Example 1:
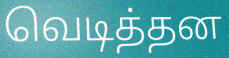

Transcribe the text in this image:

வெடித்தன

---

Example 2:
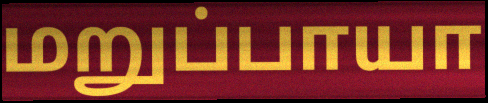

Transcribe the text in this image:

மறுப்பாயா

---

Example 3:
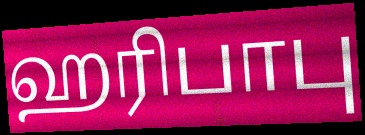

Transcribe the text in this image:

ஹரிபாபு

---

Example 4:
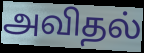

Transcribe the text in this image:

அவிதல்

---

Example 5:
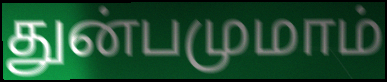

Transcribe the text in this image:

துன்பமுமாம்